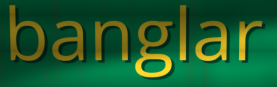
banglar